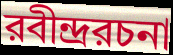
রবীন্দ্ররচনা